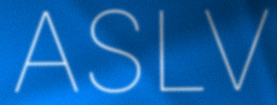
ASLV